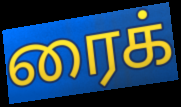
ரைக்